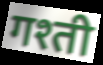
गश्ती